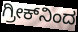
ಗ್ರೀಕ್‌ನಿಂದ